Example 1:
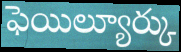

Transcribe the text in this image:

ఫెయిల్యూర్కు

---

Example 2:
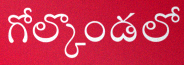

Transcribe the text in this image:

గోల్కొండలో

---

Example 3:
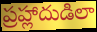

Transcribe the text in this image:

ప్రహ్లాదుడిలా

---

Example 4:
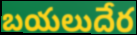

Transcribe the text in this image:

బయలుదేర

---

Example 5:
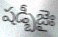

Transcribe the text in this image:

షడ్బీజైః